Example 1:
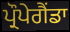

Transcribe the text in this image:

ਪ੍ਰੌਪੇਗੈਂਡਾ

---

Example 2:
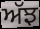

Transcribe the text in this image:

ਅੱਝ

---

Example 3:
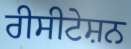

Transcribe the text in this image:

ਰੀਸੀਟੇਸ਼ਨ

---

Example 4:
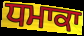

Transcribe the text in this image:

ਧਮਾਕਾ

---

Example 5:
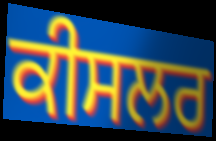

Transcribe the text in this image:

ਕੀਸਲਰ